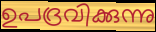
ഉപദ്രവിക്കുന്നു